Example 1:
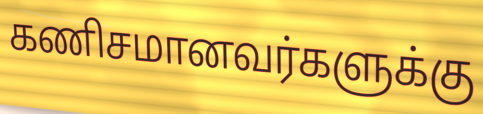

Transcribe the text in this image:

கணிசமானவர்களுக்கு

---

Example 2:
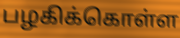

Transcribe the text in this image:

பழகிக்கொள்ள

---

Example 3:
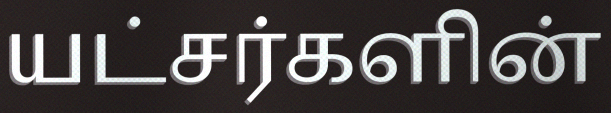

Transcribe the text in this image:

யட்சர்களின்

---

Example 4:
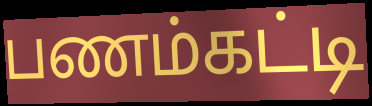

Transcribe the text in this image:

பணம்கட்டி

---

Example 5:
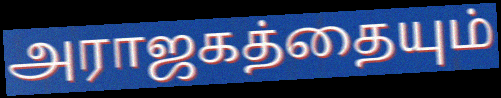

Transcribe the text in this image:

அராஜகத்தையும்